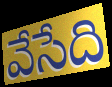
వేసేది